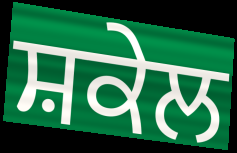
ਸ਼ਕੇਲ